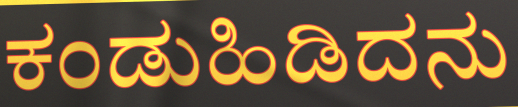
ಕಂಡುಹಿಡಿದನು